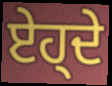
ਏਹ੍ਦੇ